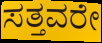
ಸತ್ತವರೇ